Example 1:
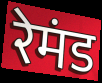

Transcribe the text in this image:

रेमंड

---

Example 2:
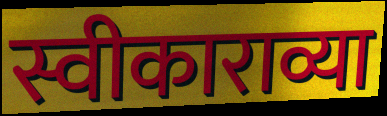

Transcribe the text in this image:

स्वीकाराव्या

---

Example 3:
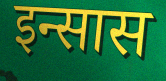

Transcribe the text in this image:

इन्सास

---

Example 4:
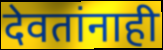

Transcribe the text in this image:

देवतांनाही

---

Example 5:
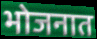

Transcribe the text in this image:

भोजनात